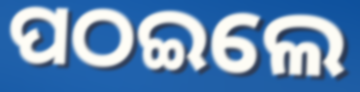
ପଠଇଲେ